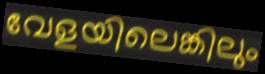
വേളയിലെങ്കിലും